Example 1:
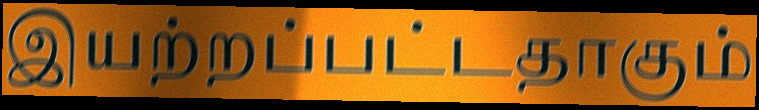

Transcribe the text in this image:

இயற்றப்பட்டதாகும்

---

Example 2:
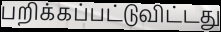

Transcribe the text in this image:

பறிக்கப்பட்டுவிட்டது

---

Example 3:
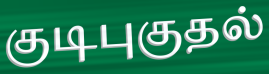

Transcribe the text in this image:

குடிபுகுதல்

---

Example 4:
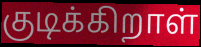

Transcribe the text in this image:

குடிக்கிறாள்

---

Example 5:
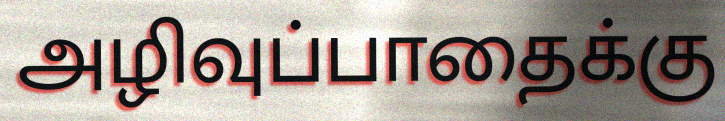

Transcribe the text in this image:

அழிவுப்பாதைக்கு